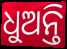
ଧୁଅନ୍ତି